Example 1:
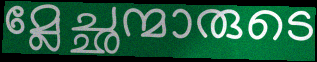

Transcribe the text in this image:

മ്ലേച്ഛന്മാരുടെ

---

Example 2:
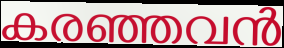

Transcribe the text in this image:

കരഞ്ഞവൻ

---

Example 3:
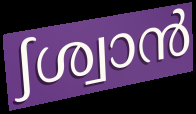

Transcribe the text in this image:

ഽശ്വാൻ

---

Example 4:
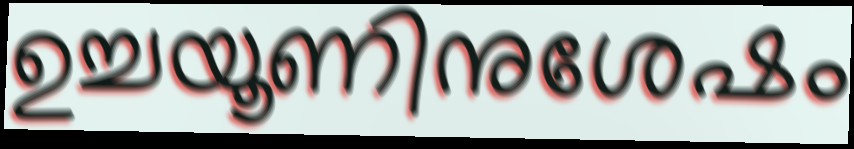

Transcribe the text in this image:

ഉച്ചയൂണിനുശേഷം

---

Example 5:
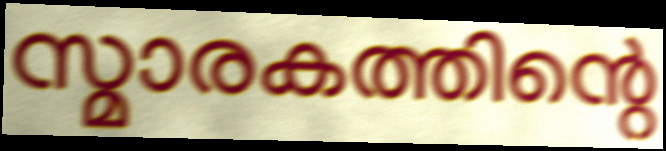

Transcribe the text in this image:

സ്മാരകത്തിന്റെ